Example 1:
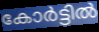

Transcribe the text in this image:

കോർട്ടിൽ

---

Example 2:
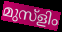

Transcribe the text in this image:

മുസ്ളിം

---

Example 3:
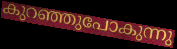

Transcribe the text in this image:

കുറഞ്ഞുപോകുന്നു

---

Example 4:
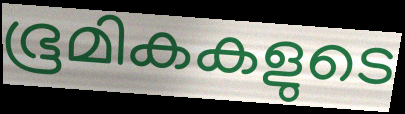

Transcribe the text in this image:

ഭൂമികകളുടെ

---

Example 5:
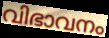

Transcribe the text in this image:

വിഭാവനം